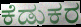
ಕೆಡುಕರ